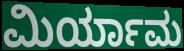
ಮಿರ್ಯಾಮ